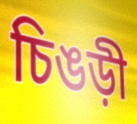
চিঙড়ী